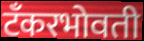
टँकरभोवती